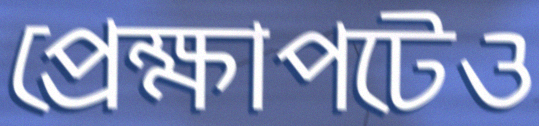
প্রেক্ষাপটেও